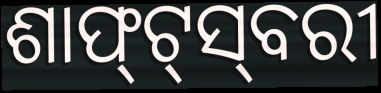
ଶାଫ୍‍ଟ୍‍ସ୍‍ବରୀ